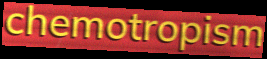
chemotropism